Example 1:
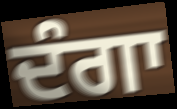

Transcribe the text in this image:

ਦੰਗਾ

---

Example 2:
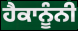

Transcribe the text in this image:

ਹੈਕਾਨੂੰਨੀ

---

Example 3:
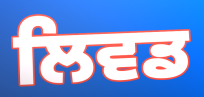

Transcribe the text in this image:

ਲਿਵਡ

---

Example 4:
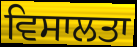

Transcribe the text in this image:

ਵਿਸਾਲਤਾ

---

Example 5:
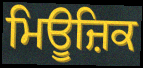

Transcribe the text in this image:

ਮਿਊਜ਼ਿਕ